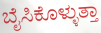
ಬೈಸಿಕೊಳ್ಳುತ್ತಾ